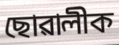
ছোৱালীক